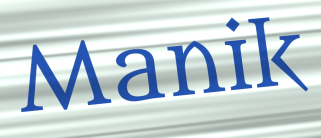
Manik